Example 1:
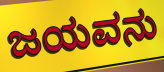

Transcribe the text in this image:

ಜಯವನು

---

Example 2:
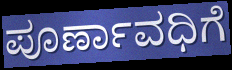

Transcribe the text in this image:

ಪೂರ್ಣಾವಧಿಗೆ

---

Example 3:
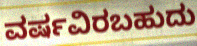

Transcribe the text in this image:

ವರ್ಷವಿರಬಹುದು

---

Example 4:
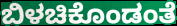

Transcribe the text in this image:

ಬಿಳಚಿಕೊಂಡಂತೆ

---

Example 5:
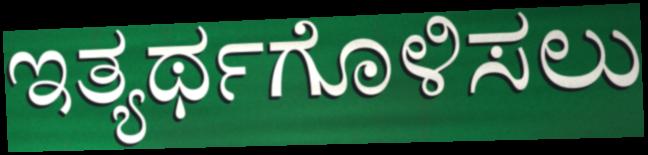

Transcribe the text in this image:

ಇತ್ಯರ್ಥಗೊಳಿಸಲು